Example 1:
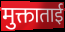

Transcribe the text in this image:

मुक्ताताई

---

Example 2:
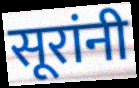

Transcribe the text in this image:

सूरांनी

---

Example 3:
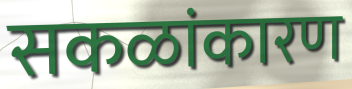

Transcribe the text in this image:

सकळांकारण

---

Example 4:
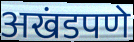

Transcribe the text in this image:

अखंडपणे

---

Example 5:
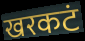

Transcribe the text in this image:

खरकटं